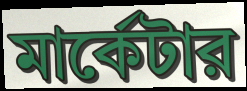
মার্কেটার